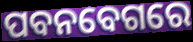
ପବନବେଗରେ